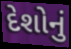
દેશોનું